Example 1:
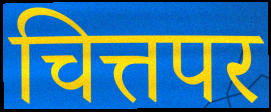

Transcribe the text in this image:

चित्तपर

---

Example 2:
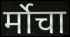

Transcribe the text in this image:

र्मोचा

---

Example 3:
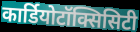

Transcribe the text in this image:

कार्डियोटॉक्सिसिटी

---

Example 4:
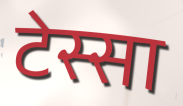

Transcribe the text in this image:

टेस्सा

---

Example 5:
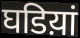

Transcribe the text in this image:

घडिय़ां